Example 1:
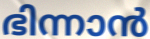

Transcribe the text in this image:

ഭിന്നാൻ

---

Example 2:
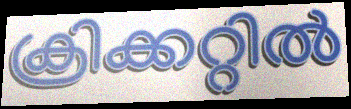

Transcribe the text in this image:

ക്രിക്കറ്റിൽ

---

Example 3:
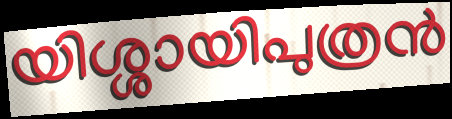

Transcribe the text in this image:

യിശ്ശായിപുത്രൻ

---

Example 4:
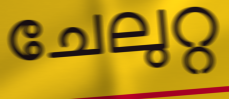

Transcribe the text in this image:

ചേലുറ്റ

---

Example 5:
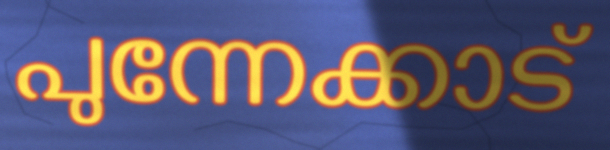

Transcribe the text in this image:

പുന്നേക്കാട്